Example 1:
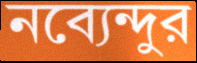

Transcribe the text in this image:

নব্যেন্দুর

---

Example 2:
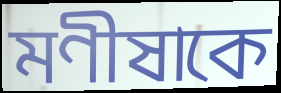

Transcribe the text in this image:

মণীষাকে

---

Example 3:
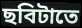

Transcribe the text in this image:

ছবিটাতে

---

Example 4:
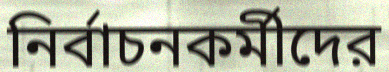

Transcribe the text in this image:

নির্বাচনকর্মীদের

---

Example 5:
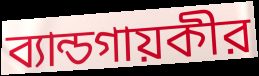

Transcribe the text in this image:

ব্যান্ডগায়কীর